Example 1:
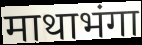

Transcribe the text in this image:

माथाभंगा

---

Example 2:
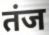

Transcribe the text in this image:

तंज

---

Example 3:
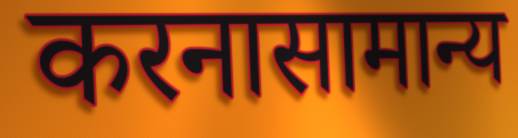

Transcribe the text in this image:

करनासामान्य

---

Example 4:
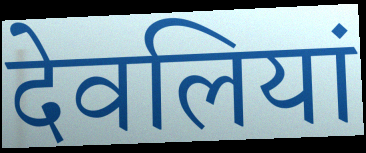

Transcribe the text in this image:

देवलियां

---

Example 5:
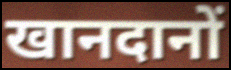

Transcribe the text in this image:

खानदानों